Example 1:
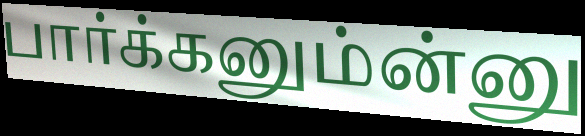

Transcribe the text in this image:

பார்க்கனும்ன்னு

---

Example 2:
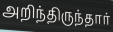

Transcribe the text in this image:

அறிந்திருந்தார்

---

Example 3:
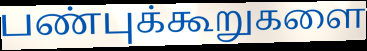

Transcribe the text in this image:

பண்புக்கூறுகளை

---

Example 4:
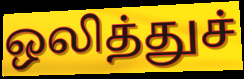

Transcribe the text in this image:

ஒலித்துச்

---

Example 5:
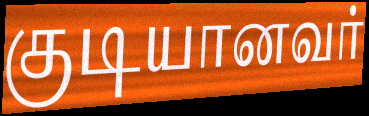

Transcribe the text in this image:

குடியானவர்